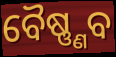
ବୈଷ୍ଣ୍ଣବ